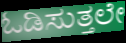
ಓಡಿಸುತ್ತಲೇ